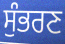
ਸੁੰਭਰਣ